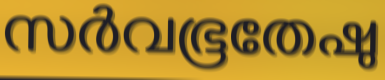
സർവഭൂതേഷു